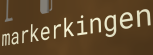
markerkingen